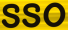
sso